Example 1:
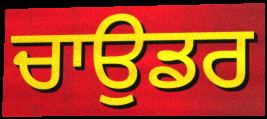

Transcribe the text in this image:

ਚਾਉਡਰ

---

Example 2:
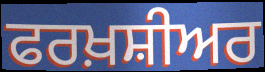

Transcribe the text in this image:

ਫਰਖ਼ਸ਼ੀਅਰ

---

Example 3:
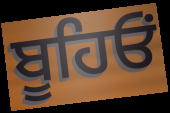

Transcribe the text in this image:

ਬੂਹਿਓਂ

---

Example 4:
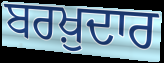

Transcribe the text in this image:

ਬਰਖ਼ੁਦਾਰ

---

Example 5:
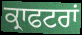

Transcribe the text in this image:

ਕ੍ਰਾਫਟਰਾਂ